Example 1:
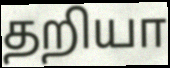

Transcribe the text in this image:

தறியா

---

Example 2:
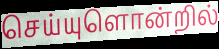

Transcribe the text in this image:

செய்யுளொன்றில்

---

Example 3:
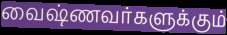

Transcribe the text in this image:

வைஷ்ணவர்களுக்கும்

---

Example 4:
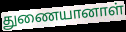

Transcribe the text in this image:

துணையானாள்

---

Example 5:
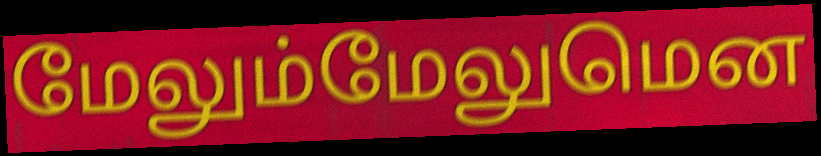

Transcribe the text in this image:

மேலும்மேலுமென